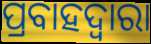
ପ୍ରବାହଦ୍ୱାରା